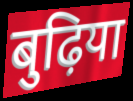
बुढ़िया